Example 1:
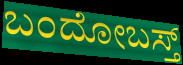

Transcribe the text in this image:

ಬಂದೋಬಸ್ತ್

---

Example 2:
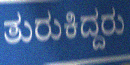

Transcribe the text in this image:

ತುರುಕಿದ್ದರು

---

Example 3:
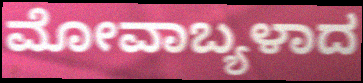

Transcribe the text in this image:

ಮೋವಾಬ್ಯಳಾದ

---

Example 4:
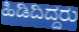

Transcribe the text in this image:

ಹಿಡಿದಿದ್ದರು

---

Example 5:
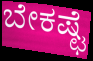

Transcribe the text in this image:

ಬೇಕಷ್ಟೆ